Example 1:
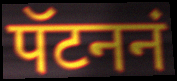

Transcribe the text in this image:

पॅटननं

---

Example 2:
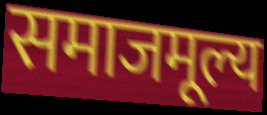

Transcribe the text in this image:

समाजमूल्य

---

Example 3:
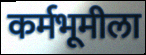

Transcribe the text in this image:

कर्मभूमीला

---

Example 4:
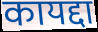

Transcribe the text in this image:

कायद्दा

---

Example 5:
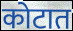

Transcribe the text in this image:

कोटात